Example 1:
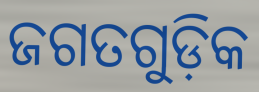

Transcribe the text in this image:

ଜଗତଗୁଡ଼ିକ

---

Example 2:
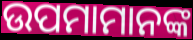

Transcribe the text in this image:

ଉପମାମାନଙ୍କ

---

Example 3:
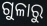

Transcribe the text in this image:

ଗୁଳାରୁ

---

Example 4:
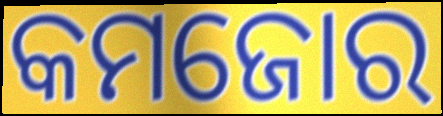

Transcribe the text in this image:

କମଜୋର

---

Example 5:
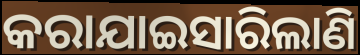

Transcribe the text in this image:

କରାଯାଇସାରିଲାଣି